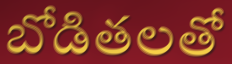
బోడితలతో